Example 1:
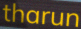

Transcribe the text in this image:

tharun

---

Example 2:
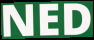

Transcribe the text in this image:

NED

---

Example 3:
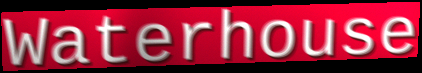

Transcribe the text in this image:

Waterhouse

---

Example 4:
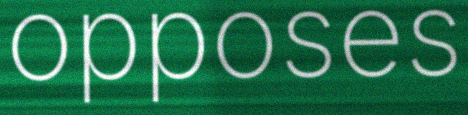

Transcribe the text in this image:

opposes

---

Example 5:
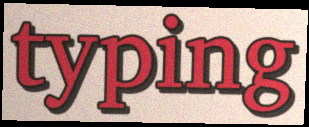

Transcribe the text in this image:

typing